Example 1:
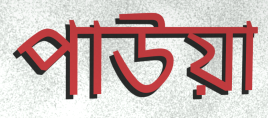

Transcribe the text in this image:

পাউয়া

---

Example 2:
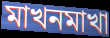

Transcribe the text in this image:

মাখনমাখা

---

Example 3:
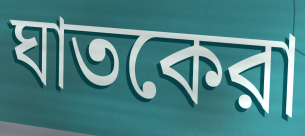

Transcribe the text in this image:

ঘাতকেরা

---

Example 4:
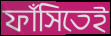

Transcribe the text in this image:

ফাঁসিতেই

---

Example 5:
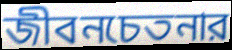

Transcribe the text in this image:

জীবনচেতনার